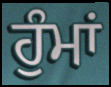
ਹੁੰਮਾਂ